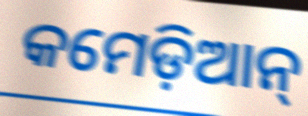
କମେଡ଼ିଆନ୍